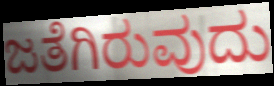
ಜತೆಗಿರುವುದು